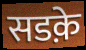
सडक़े